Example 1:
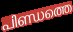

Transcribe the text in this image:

പിണ്ഡത്തെ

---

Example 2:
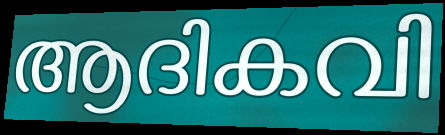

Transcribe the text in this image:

ആദികവി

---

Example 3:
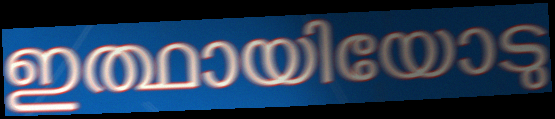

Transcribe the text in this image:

ഇത്ഥായിയോടു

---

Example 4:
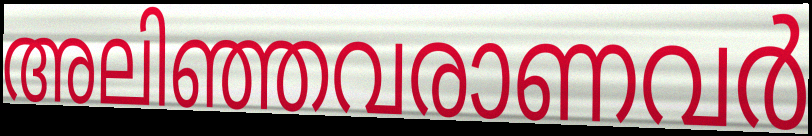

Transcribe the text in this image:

അലിഞ്ഞവരാണവർ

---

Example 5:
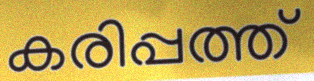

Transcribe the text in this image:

കരിപ്പത്ത്